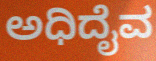
ಅಧಿದೈವ